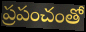
ప్రపంచంతో